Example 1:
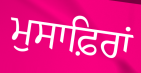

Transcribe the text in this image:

ਮੁਸਾਫ਼ਿਰਾਂ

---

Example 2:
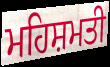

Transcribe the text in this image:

ਮਹਿਸ਼ਮਤੀ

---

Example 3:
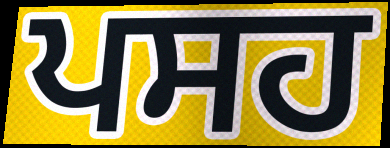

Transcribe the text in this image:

ਪਸਹ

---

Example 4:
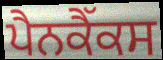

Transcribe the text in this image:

ਪੈਨਕੈੱਕਸ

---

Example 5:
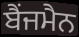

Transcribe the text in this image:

ਬੈਂਜਮੈਨ